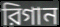
রিগান